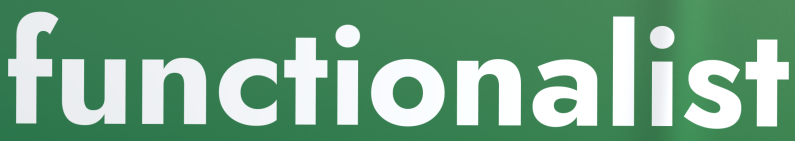
functionalist